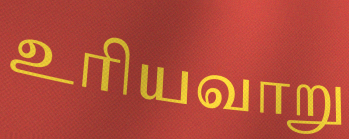
உரியவாறு